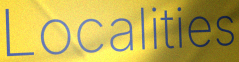
Localities